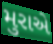
મુરાએ